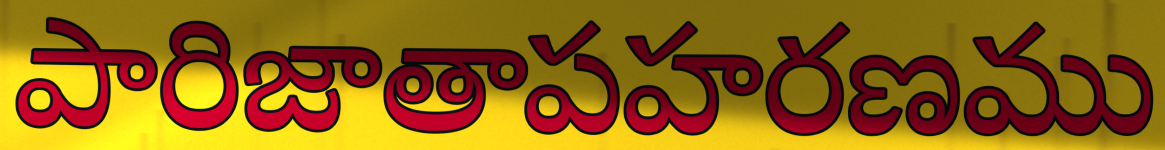
పారిజాతాపహరణము